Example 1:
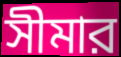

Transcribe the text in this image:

সীমার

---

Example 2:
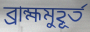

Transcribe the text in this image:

ব্রাহ্মমুহূর্ত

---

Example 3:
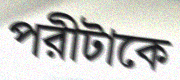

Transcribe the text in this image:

পরীটাকে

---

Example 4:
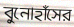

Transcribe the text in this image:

বুনোহাঁসের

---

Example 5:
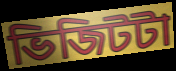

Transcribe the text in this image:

ভিজিটটা